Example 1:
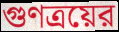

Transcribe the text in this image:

গুণত্রয়ের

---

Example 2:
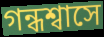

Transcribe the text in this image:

গন্ধশ্বাসে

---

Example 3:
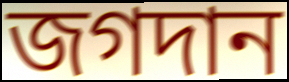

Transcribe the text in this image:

জগদান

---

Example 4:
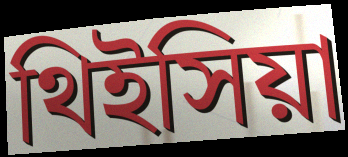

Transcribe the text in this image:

থিইসিয়া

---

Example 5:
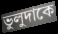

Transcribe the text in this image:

ভুলুদাকে